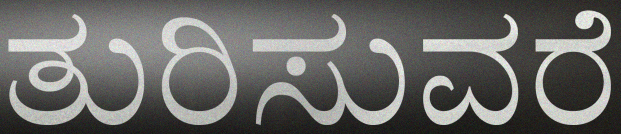
ತುರಿಸುವರೆ